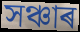
সঞ্চাৰ